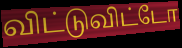
விட்டுவிட்டோ